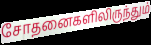
சோதனைகளிலிருந்தும்